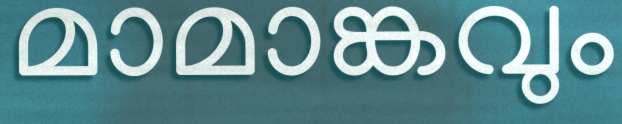
മാമാങ്കവും